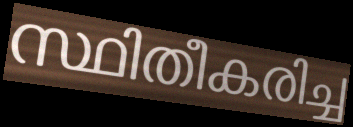
സ്ഥിതീകരിച്ച